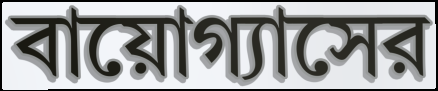
বায়োগ্যাসের